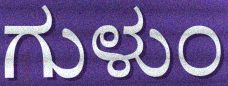
ಗುಳುಂ